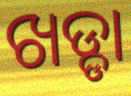
ଖଡ୍ଡା